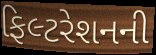
ફિલ્ટરેશનની